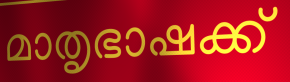
മാതൃഭാഷക്ക്